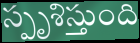
స్పృశిస్తుంది